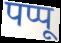
पप्‍पू